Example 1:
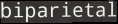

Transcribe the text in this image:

biparietal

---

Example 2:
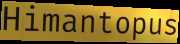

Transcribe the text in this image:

Himantopus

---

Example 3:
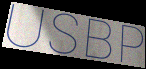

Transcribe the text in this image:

USBP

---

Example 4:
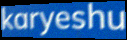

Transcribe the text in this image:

karyeshu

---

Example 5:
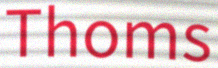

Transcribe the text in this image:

Thoms